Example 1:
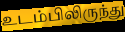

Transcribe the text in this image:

உடம்பிலிருந்து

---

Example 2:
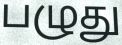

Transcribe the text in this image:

பழுது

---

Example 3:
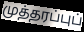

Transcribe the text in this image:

முத்தரப்புப்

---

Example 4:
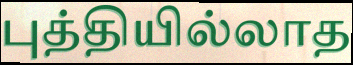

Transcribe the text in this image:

புத்தியில்லாத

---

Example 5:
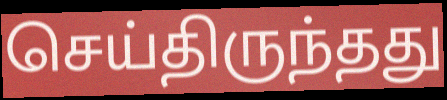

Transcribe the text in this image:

செய்திருந்தது